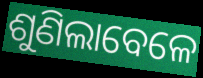
ଶୁଣିଲାବେଳେ